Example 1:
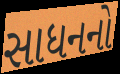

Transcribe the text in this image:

સાધનનો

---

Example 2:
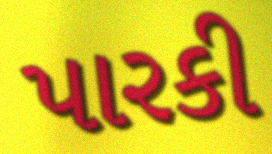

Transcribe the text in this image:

પારકી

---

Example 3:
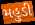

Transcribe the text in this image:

મહુડી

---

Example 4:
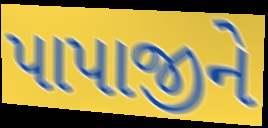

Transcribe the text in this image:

પાપાજીને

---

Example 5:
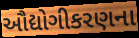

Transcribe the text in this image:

ઔદ્યોગીકરણના